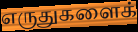
எருதுகளைக்